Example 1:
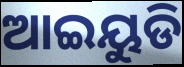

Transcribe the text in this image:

ଆଇୟୁଡି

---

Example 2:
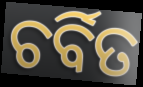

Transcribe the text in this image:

ଚର୍ବିତ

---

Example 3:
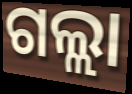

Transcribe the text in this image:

ଗଲ୍ଲା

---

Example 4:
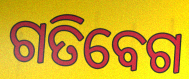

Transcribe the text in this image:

ଗତିବେଗ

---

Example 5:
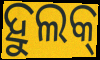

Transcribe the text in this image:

ହୁଲକ୍